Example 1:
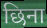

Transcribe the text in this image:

छिना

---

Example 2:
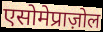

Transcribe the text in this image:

एसोमेप्राज़ोल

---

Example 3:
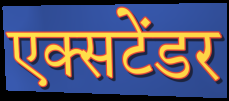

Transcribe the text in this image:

एक्सटेंडर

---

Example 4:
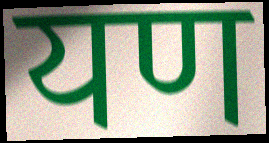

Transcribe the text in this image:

यण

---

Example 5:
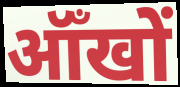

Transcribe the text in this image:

ऑँखों